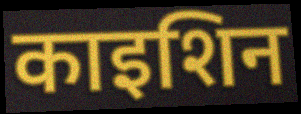
काइशिन